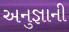
અનુજ્ઞાની